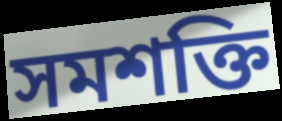
সমশক্তি